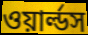
ওয়ার্ল্ডস